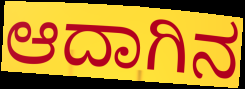
ಆದಾಗಿನ